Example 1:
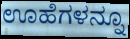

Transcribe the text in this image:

ಊಹೆಗಳನ್ನೂ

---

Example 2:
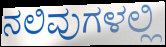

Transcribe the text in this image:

ನಲಿವುಗಳಲ್ಲಿ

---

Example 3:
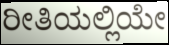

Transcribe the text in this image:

ರೀತಿಯಲ್ಲಿಯೇ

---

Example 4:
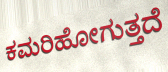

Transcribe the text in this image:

ಕಮರಿಹೋಗುತ್ತದೆ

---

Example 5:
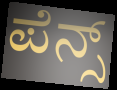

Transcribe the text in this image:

ಪೆನ್ಸ್